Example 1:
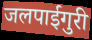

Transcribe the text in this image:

जलपाईगुरी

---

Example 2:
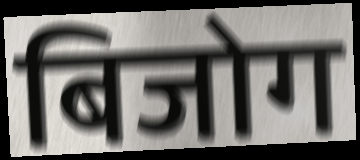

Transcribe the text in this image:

बिजोग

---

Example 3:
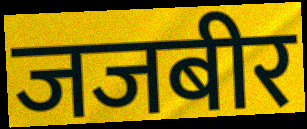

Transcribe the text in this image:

जजबीर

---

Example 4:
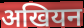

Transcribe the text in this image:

अखियन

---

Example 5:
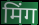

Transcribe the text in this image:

मिंग